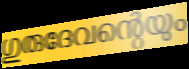
ഗുരുദേവന്റെയും